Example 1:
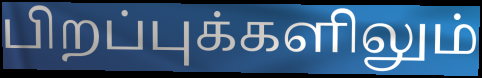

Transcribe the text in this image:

பிறப்புக்களிலும்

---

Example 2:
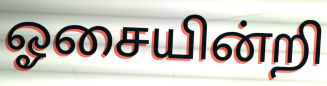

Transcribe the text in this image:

ஓசையின்றி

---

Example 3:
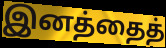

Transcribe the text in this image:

இனத்தைத்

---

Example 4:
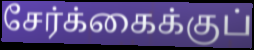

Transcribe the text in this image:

சேர்க்கைக்குப்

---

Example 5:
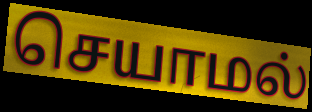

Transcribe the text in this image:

செயாமல்